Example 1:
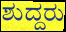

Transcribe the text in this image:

ಶುದ್ದರು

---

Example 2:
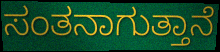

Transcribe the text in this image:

ಸಂತನಾಗುತ್ತಾನೆ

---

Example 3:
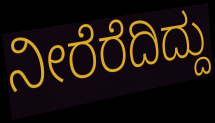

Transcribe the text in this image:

ನೀರೆರೆದಿದ್ದು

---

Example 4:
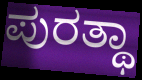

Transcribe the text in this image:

ಪುರತ್ಥಾ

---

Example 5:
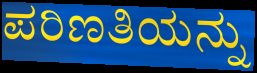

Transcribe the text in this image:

ಪರಿಣತಿಯನ್ನು